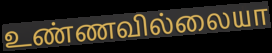
உண்ணவில்லையா